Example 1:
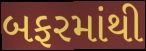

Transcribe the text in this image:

બફરમાંથી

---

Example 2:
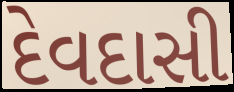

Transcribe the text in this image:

દેવદાસી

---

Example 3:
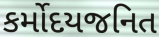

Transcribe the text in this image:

કર્મોદયજનિત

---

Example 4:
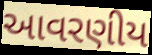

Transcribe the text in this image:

આવરણીય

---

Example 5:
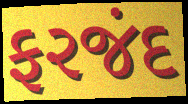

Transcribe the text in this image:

ફરજંદ